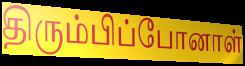
திரும்பிப்போனாள்